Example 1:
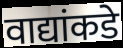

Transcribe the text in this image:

वाद्यांकडे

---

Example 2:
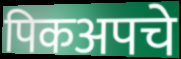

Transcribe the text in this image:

पिकअपचे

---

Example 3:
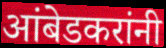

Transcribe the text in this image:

आंबेडकरांनी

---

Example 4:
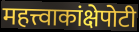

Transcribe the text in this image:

महत्त्वाकांक्षेपोटी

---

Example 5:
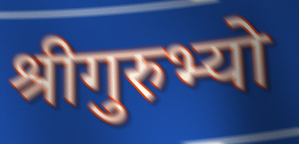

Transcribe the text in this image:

श्रीगुरुभ्यो